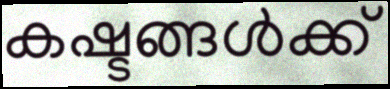
കഷ്ടങ്ങൾക്ക്